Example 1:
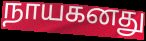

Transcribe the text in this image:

நாயகனது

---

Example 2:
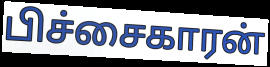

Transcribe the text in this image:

பிச்சைகாரன்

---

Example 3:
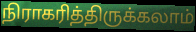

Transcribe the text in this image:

நிராகரித்திருக்கலாம்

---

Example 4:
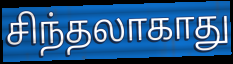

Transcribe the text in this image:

சிந்தலாகாது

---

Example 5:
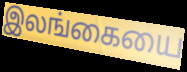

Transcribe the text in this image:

இலங்கையை